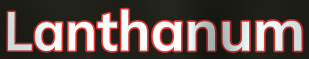
Lanthanum